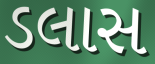
ડલાસ